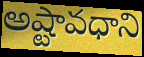
అష్టావధాని